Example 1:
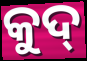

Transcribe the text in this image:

କୁଦ୍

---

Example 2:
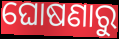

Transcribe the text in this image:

ଘୋଷଣାରୁ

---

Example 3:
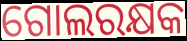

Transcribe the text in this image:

ଗୋଲରକ୍ଷକ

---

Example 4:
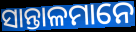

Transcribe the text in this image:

ସାନ୍ତାଳମାନେ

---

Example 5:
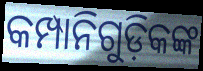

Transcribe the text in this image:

କମ୍ପାନିଗୁଡ଼ିକଙ୍କ